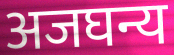
अजघन्य